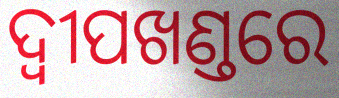
ଦ୍ଵୀପଖଣ୍ଡରେ